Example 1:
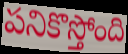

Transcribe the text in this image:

పనికొస్తోంది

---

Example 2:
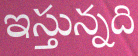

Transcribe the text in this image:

ఇస్తున్నది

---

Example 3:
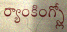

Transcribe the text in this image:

ర్యాంకింగ్స్లో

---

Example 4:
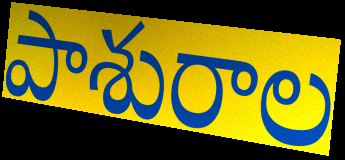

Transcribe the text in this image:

పాశురాల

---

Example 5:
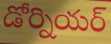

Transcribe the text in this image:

డోర్నియర్